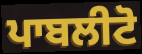
ਪਾਬਲੀਟੋ